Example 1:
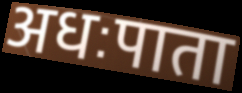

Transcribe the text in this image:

अधःपाता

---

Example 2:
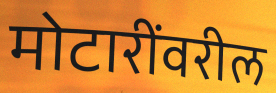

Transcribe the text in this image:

मोटारींवरील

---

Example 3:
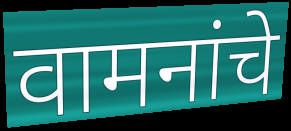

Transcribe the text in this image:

वामनांचे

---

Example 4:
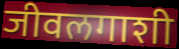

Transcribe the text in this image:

जीवलगाशी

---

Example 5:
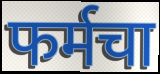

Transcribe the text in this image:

फर्मचा